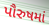
પૌરુષમાં